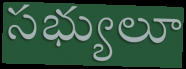
సభ్యులూ